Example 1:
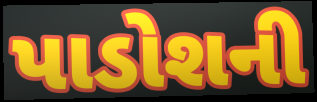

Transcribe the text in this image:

પાડોશની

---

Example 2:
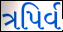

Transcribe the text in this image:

ત્રપિર્વ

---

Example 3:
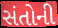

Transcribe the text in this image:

સંતોની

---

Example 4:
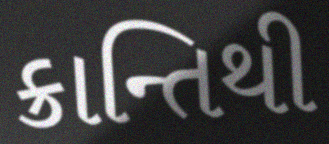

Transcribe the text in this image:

ક્રાન્તિથી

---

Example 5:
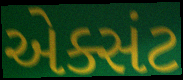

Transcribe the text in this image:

એક્સંટ